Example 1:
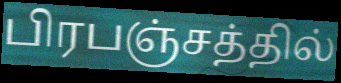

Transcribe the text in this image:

பிரபஞ்சத்தில்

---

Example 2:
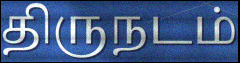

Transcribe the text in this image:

திருநடம்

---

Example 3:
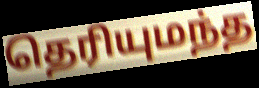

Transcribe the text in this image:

தெரியுமந்த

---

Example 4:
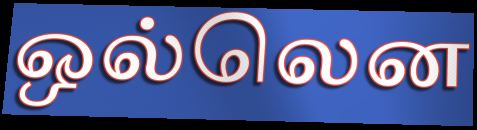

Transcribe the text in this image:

ஒல்லென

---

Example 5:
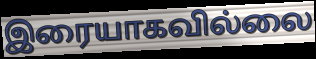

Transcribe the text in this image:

இரையாகவில்லை